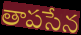
తాపసేన